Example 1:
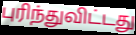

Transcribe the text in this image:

புரிந்துவிட்டது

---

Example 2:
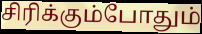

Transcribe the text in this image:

சிரிக்கும்போதும்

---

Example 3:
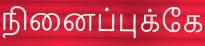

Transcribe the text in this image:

நினைப்புக்கே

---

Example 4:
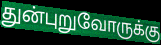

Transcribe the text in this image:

துன்புறுவோருக்கு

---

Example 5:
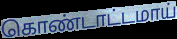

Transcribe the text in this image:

கொண்டாட்டமாய்